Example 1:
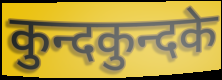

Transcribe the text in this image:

कुन्दकुन्दके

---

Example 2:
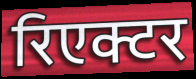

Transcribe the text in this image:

रिएक्टर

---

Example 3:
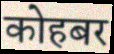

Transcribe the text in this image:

कोहबर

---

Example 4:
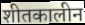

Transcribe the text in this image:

शीतकालीन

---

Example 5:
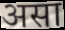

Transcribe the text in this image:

असा